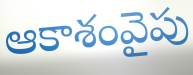
ఆకాశంవైపు